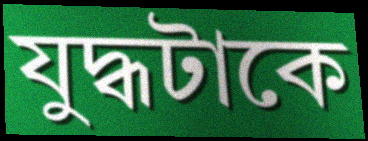
যুদ্ধটাকে